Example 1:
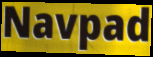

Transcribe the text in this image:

Navpad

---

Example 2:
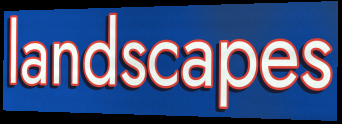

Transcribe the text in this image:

landscapes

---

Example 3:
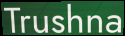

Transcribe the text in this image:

Trushna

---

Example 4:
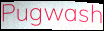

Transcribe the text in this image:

Pugwash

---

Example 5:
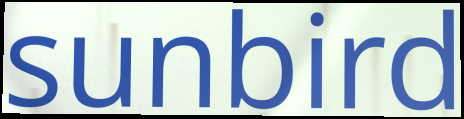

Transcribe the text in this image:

sunbird